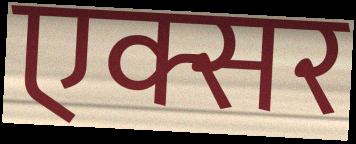
एक्सर